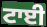
ਟਾਈ